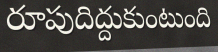
రూపుదిద్దుకుంటుంది